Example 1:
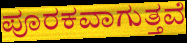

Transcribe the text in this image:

ಪೂರಕವಾಗುತ್ತವೆ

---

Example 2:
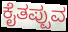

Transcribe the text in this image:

ಕೈತಪ್ಪುವ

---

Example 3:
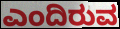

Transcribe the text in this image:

ಎಂದಿರುವ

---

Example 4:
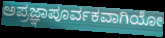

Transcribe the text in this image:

ಅಪ್ರಜ್ಞಾಪೂರ್ವಕವಾಗಿಯೋ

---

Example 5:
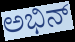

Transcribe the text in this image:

ಅಭಿನ್